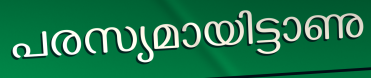
പരസ്യമായിട്ടാണു